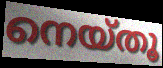
നെയ്തൂ